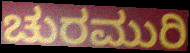
ಚುರಮುರಿ